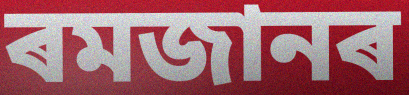
ৰমজানৰ